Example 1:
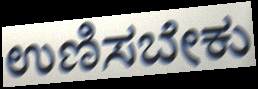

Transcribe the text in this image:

ಉಣಿಸಬೇಕು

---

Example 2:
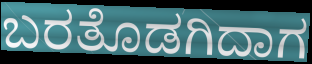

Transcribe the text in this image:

ಬರತೊಡಗಿದಾಗ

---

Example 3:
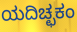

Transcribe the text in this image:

ಯದಿಚ್ಛಕಂ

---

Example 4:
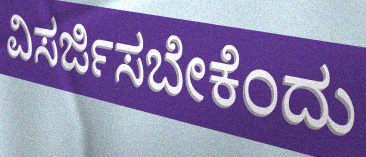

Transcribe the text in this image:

ವಿಸರ್ಜಿಸಬೇಕೆಂದು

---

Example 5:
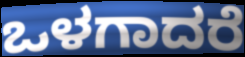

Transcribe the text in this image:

ಒಳಗಾದರೆ